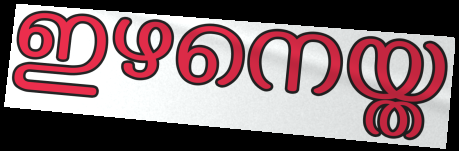
ഇഴനെയ്ത